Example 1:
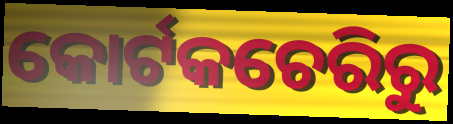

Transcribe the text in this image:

କୋର୍ଟକଚେରିରୁ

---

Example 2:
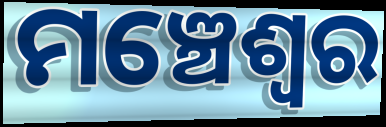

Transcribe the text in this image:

ମଞ୍ଚେଶ୍ଵର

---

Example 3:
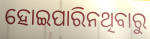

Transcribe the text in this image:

ହୋଇପାରିନଥିବାରୁ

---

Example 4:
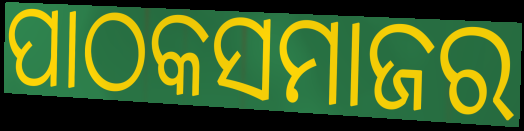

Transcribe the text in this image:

ପାଠକସମାଜର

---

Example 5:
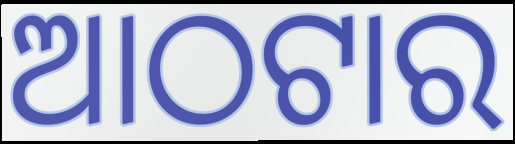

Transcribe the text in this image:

ଆଠଟାର